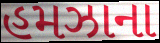
હમઝાના